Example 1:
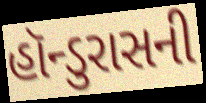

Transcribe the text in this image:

હૉન્ડુરાસની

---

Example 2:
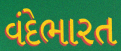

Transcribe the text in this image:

વંદેભારત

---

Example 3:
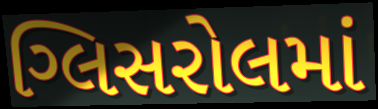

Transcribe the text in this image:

ગ્લિસરોલમાં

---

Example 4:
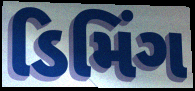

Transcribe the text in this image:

ડિમિંગ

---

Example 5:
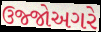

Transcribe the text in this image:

ઉજ્જોઅગરે